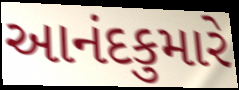
આનંદકુમારે